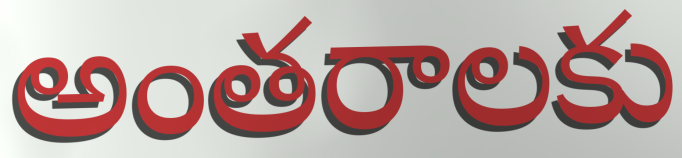
అంతరాలకు